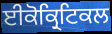
ਈਕੋਕ੍ਰਿਟਿਕਲ